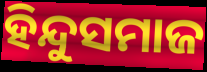
ହିନ୍ଦୁସମାଜ